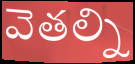
వెతల్ని